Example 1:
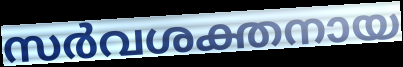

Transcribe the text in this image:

സർവശക്തനായ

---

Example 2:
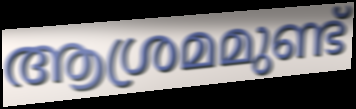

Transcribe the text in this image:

ആശ്രമമുണ്ട്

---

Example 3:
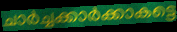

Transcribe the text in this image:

ചാർച്ചക്കാർക്കാകട്ടെ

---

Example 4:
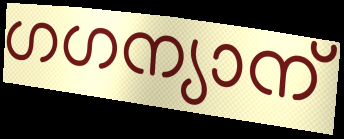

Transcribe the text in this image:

ഗഗന്യാന്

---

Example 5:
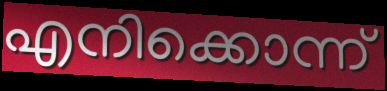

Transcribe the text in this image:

എനിക്കൊന്ന്